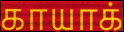
காயாக்